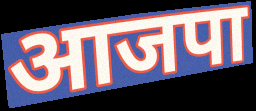
आजपा